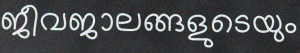
ജീവജാലങ്ങളുടെയും